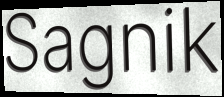
Sagnik